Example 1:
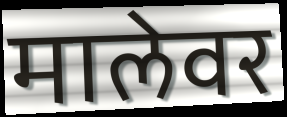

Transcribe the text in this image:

मालेवर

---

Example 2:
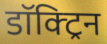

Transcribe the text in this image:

डॉक्ट्रिन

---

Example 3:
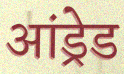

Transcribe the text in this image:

आंड्रेड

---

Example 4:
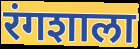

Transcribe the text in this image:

रंगशाला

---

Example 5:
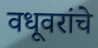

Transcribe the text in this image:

वधूवरांचे